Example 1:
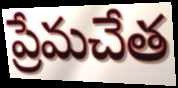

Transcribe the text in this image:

ప్రేమచేత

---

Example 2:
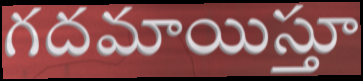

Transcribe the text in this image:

గదమాయిస్తూ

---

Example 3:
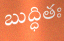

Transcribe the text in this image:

బుద్ధితః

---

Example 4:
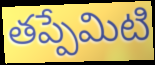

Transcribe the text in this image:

తప్పేమిటి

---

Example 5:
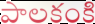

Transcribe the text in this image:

పాలకంకి